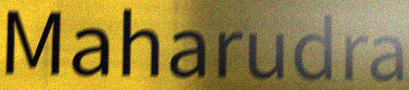
Maharudra